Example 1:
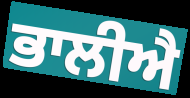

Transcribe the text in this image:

ਭਾਲੀਐ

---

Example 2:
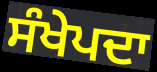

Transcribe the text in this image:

ਸੰਖੇਪਦਾ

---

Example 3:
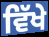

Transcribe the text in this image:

ਵਿੱਖੇ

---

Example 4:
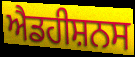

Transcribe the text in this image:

ਐਡਹੀਸ਼ਨਸ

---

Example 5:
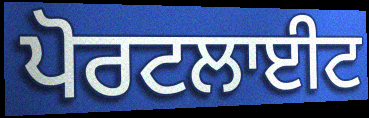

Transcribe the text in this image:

ਪੋਰਟਲਾਈਟ